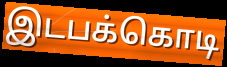
இடபக்கொடி